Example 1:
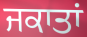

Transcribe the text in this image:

ਜਕਾਤਾਂ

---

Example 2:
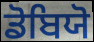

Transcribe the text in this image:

ਡੋਬਿਯੋ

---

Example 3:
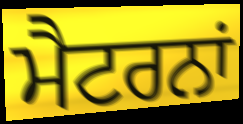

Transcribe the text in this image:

ਮੈਟਰਨਾਂ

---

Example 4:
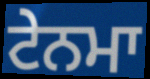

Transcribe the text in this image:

ਟੇਨਮਾ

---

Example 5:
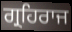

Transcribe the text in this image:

ਗ੍ਰਹਿਰਾਜ